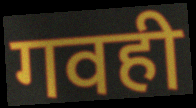
गवही